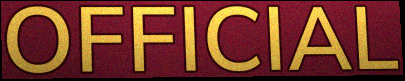
OFFICIAL